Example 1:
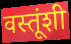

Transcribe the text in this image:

वस्तूंशी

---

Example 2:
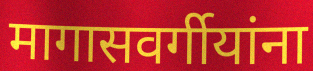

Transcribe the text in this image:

मागासवर्गीयांना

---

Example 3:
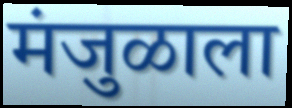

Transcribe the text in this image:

मंजुळाला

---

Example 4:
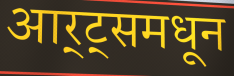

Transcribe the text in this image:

आर्ट्समधून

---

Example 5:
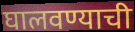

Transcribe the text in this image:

घालवण्याची